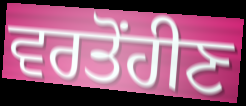
ਵਰਤੋਂਹੀਣ